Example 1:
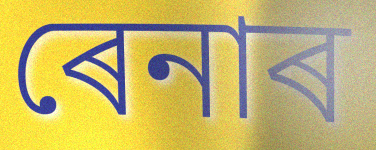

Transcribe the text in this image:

ৰেনাৰ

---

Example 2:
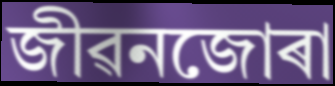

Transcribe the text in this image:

জীৱনজোৰা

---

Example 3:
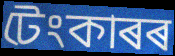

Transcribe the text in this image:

টেংকাৰৰ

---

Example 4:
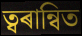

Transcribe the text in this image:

ত্বৰান্বিত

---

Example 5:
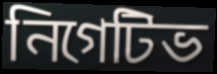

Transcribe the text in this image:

নিগেটিভ